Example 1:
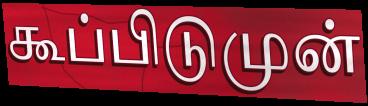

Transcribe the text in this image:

கூப்பிடுமுன்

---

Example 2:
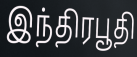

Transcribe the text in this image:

இந்திரபூதி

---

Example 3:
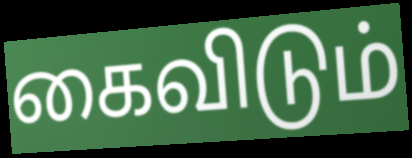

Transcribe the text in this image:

கைவிடும்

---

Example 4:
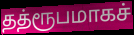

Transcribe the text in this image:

தத்ரூபமாகச்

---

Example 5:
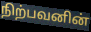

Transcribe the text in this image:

நிற்பவனின்